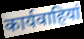
कार्यवाहियां